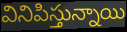
వినిపిస్తున్నాయి